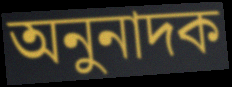
অনুনাদক